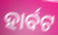
ହାର୍ବଟ